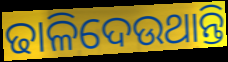
ଢାଳିଦେଉଥାନ୍ତି